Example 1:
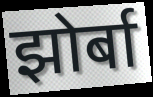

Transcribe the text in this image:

झोर्बा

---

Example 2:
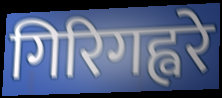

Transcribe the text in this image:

गिरिगह्वरे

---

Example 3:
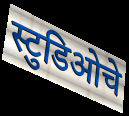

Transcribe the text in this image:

स्टुडिओचे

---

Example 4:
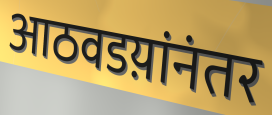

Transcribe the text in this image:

आठवडय़ांनंतर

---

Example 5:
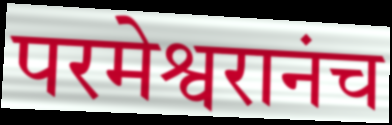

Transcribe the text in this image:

परमेश्वरानंच